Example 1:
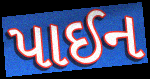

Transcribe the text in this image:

પાઈન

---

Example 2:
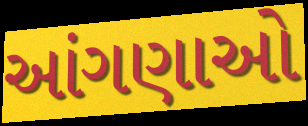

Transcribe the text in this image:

આંગણાઓ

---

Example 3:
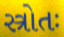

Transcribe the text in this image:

સ્ત્રોતઃ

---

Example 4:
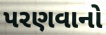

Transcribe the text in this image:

પરણવાનો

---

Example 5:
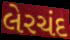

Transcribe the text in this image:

લેરચંદ